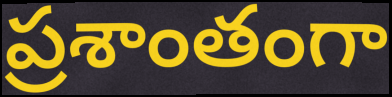
ప్రశాంతంగా